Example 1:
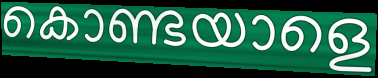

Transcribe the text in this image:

കൊണ്ടയാളെ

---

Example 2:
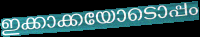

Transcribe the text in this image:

ഇക്കാക്കയോടൊപ്പം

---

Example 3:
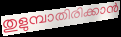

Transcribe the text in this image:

തുളുമ്പാതിരിക്കാൻ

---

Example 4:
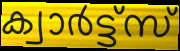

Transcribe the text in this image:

ക്വാർട്ട്സ്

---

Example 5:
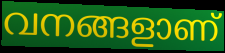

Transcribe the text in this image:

വനങ്ങളാണ്